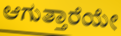
ಆಗುತ್ತಾರೆಯೇ